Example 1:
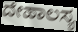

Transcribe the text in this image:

ದೇಹಾಲಸ್ಯ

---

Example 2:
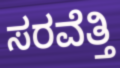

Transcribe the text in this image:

ಸರವೆತ್ತಿ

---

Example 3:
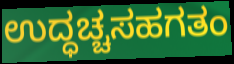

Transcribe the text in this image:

ಉದ್ಧಚ್ಚಸಹಗತಂ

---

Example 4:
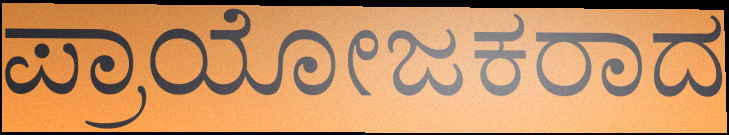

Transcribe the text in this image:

ಪ್ರಾಯೋಜಕರಾದ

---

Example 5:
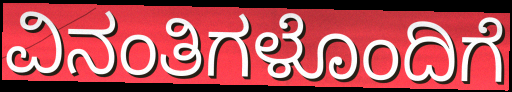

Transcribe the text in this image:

ವಿನಂತಿಗಳೊಂದಿಗೆ